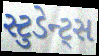
સ્ટુડેન્ટ્સ